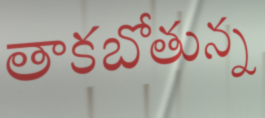
తాకబోతున్న